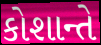
કોશાન્તે